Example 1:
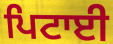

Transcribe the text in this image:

ਪਿਟਾਈ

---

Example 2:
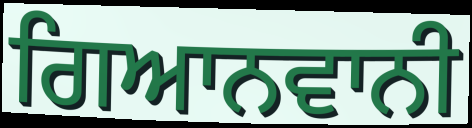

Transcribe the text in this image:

ਗਿਆਨਵਾਨੀ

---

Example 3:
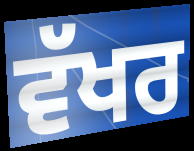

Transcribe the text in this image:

ਵੱਖਰ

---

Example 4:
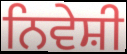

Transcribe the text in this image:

ਨਿਵੇਸ਼ੀ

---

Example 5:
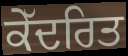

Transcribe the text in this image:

ਕੇੱਦਰਿਤ